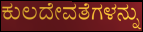
ಕುಲದೇವತೆಗಳನ್ನು